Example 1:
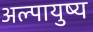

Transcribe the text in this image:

अल्पायुष्य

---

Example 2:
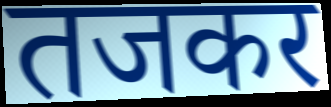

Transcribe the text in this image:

तजकर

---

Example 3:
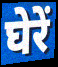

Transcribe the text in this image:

घेरें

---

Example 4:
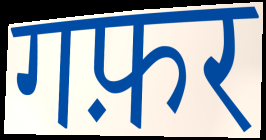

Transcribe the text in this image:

गफ़र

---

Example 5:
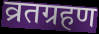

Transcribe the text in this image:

व्रतग्रहण